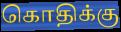
கொதிக்கு